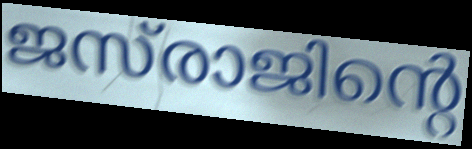
ജസ്‌രാജിന്റെ